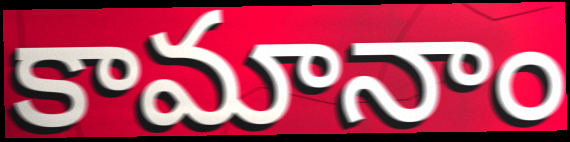
కామానాం